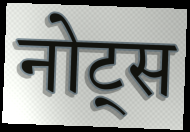
नोट्‌स